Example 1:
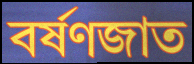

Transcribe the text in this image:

বর্ষণজাত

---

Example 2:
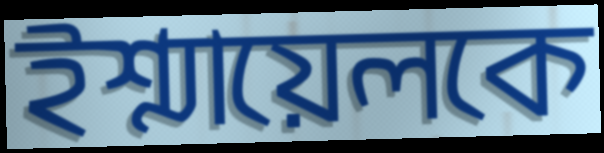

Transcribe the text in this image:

ইশ্মায়েলকে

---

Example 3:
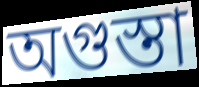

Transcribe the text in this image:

অগুস্তা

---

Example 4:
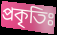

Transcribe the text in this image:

প্রকৃতিঃ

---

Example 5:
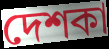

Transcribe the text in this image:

দেশকা